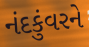
નંદકુંવરને